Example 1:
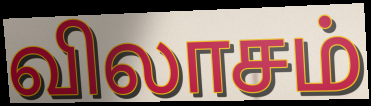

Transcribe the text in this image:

விலாசம்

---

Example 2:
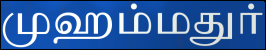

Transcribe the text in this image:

முஹம்மதுர்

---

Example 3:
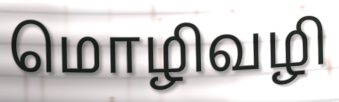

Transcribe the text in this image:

மொழிவழி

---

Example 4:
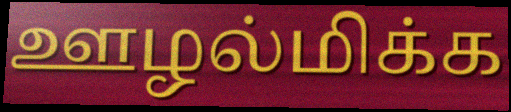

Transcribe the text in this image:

ஊழல்மிக்க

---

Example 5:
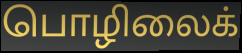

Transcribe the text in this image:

பொழிலைக்